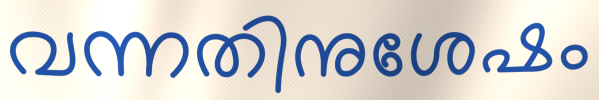
വന്നതിനുശേഷം